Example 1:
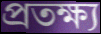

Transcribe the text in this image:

প্ৰতক্ষ্য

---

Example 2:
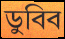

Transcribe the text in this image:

ডুবিব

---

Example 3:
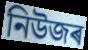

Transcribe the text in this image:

নিউজৰ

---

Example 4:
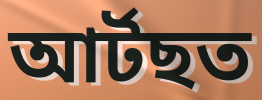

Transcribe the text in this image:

আৰ্টছত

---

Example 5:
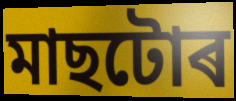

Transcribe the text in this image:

মাছটোৰ